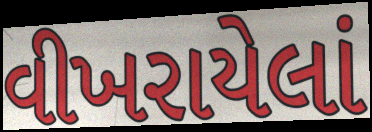
વીખરાયેલાં